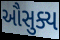
ઔસુક્ય